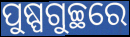
ପୁଷ୍ପଗୁଚ୍ଛରେ